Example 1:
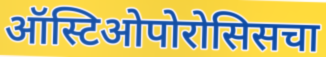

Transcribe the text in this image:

ऑस्टिओपोरोसिसचा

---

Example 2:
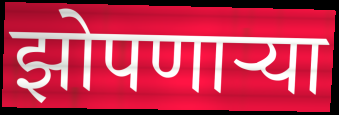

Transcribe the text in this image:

झोपणार्‍या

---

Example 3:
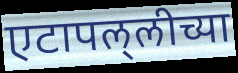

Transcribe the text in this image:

एटापल्लीच्या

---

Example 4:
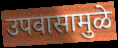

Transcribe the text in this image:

उपवासामुळे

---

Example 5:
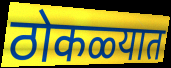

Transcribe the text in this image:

ठोकळ्यात